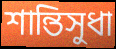
শান্তিসুধা